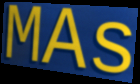
MAs